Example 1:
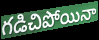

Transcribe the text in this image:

గడిచిపోయినా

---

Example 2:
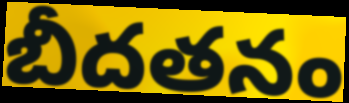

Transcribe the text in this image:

బీదతనం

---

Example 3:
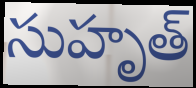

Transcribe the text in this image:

సుహృత్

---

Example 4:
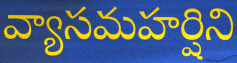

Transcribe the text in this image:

వ్యాసమహర్షిని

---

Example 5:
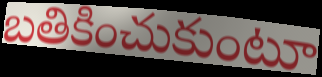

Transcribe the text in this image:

బతికించుకుంటూ